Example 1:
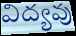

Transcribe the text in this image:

విద్యవు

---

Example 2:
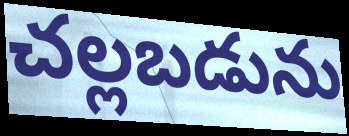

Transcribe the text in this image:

చల్లబడును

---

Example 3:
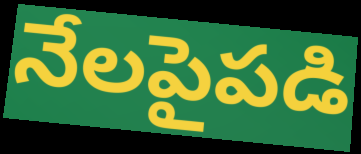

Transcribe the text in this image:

నేలపైపడి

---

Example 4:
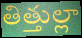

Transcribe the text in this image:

తిత్తుల్లా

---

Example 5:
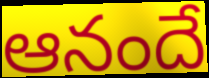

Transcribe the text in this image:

ఆనందే